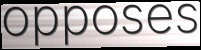
opposes